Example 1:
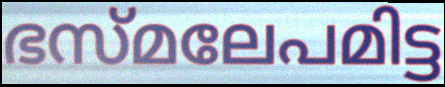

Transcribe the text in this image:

ഭസ്മലേപമിട്ട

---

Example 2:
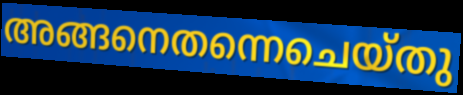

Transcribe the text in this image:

അങ്ങനെതന്നെചെയ്തു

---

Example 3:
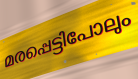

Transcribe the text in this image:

മരപ്പെട്ടിപോലും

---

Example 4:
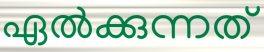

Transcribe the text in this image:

ഏൽക്കുന്നത്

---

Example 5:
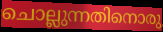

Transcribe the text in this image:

ചൊല്ലുന്നതിനൊരു